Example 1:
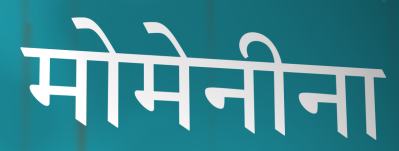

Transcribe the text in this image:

मोमेनीना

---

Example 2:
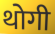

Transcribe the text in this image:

थोगी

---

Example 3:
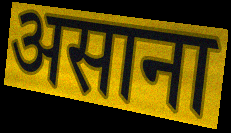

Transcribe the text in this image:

असाना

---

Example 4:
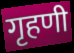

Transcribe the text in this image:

गृहणी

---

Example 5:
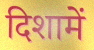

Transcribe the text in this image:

दिशामें